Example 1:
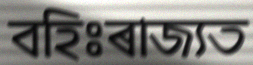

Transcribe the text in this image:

বহিঃৰাজ্যত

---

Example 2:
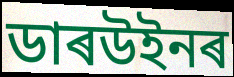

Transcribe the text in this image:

ডাৰউইনৰ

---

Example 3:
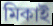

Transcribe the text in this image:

মিকাই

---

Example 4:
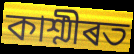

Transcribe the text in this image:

কাশ্মীৰত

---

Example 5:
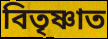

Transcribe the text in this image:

বিতৃষ্ণাত